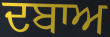
ਦਬਾਅ